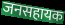
जनसहायक